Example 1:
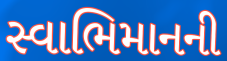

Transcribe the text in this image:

સ્વાભિમાનની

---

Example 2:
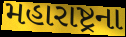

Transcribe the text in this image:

મહારાષ્ટ્રના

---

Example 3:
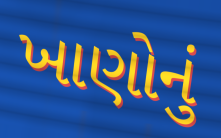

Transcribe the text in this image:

ખાણોનું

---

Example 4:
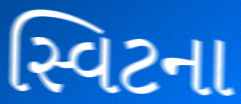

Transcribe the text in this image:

સ્વિટના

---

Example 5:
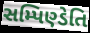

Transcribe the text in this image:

સમ્પિણ્ડેતિ